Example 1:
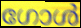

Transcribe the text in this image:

ഗോൾ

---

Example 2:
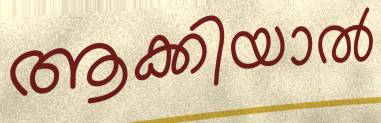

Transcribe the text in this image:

ആക്കിയാൽ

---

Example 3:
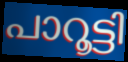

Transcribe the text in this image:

പാറൂട്ടി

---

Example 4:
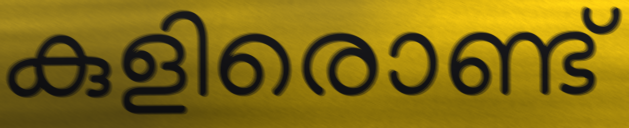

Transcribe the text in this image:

കുളിരൊണ്ട്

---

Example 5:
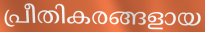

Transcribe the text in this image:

പ്രീതികരങ്ങളായ